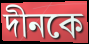
দীনকে